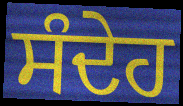
ਸੰਦੇਹ